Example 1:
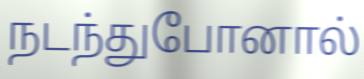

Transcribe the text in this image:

நடந்துபோனால்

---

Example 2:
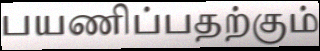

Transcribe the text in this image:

பயணிப்பதற்கும்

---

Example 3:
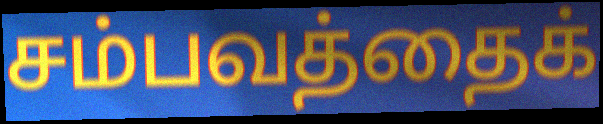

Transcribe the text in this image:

சம்பவத்தைக்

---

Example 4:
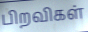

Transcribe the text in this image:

பிறவிகள்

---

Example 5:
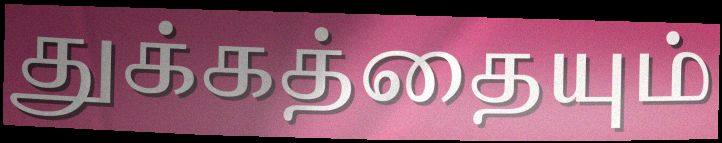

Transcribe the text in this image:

துக்கத்தையும்